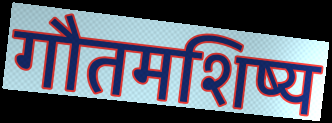
गौतमशिष्य